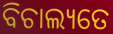
ବିଚାଲ୍ୟତେ